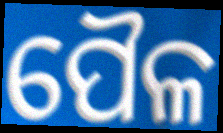
ପୈଳ